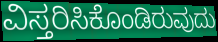
ವಿಸ್ತರಿಸಿಕೊಂಡಿರುವುದು